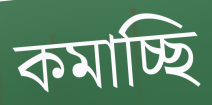
কমাচ্ছি